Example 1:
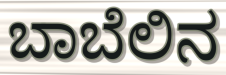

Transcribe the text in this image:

ಬಾಬೆಲಿನ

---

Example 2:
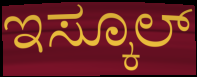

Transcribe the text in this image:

ಇಸ್ಕೂಲ್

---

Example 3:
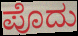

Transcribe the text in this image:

ಪೊದು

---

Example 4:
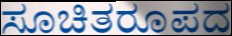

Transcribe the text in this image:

ಸೂಚಿತರೂಪದ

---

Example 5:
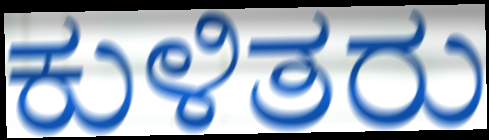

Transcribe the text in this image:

ಕುಳಿತರು